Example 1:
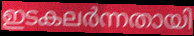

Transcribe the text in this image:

ഇടകലർന്നതായി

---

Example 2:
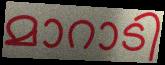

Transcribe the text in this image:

മാറാടി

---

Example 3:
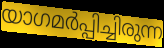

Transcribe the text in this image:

യാഗമർപ്പിച്ചിരുന്ന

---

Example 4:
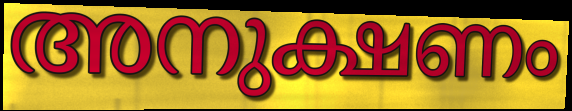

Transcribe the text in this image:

അനുക്ഷണം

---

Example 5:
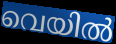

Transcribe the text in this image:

വെയിൽ